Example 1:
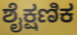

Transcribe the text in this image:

ಶೈಕ್ಷಣಿಕ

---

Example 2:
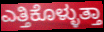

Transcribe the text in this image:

ಎತ್ತಿಕೊಳ್ಳುತ್ತಾ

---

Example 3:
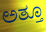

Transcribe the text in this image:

ಅತ್ತೂ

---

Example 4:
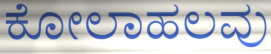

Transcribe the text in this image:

ಕೋಲಾಹಲವು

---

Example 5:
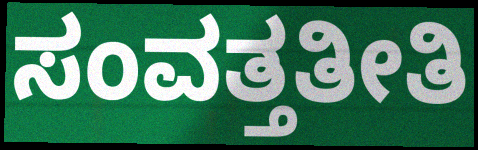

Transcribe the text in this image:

ಸಂವತ್ತತೀತಿ